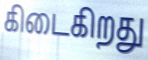
கிடைகிறது